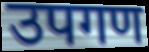
उपगण